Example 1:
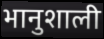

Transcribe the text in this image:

भानुशाली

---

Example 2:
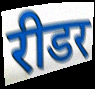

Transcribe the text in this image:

रीडर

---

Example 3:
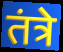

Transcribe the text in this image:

तंत्रे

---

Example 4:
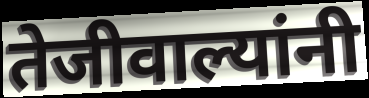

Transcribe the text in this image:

तेजीवाल्यांनी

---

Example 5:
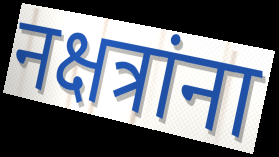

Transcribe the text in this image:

नक्षत्रांना